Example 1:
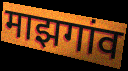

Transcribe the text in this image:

माझगांव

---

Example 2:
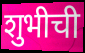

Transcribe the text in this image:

शुभीची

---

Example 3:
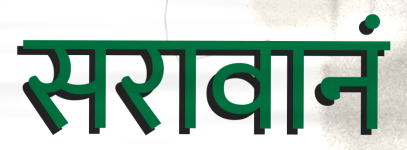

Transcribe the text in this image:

सरावानं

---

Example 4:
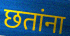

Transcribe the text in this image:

छतांना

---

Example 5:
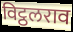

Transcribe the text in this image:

विट्ठलराव